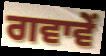
ਗਵਾਵੇਂ